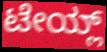
ಟೇಯ್ಲ್